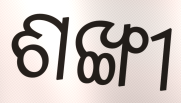
ଶଙ୍ଖୀ